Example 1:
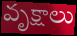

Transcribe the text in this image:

వృక్షాలు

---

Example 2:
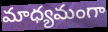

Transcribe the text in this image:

మాధ్యమంగా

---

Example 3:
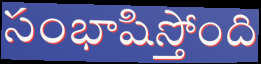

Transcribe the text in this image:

సంభాషిస్తోంది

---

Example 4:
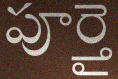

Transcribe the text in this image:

పూర్తై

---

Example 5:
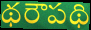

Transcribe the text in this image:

థరౌపథి